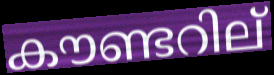
കൗണ്ടറില്